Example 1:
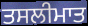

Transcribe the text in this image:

ਤਸਲੀਮਾਤ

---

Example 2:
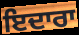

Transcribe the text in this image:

ਇਦਾਰਾ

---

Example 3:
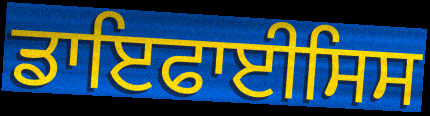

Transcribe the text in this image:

ਡਾਇਫਾਈਸਿਸ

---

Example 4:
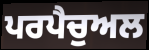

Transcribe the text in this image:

ਪਰਪੈਚੁਅਲ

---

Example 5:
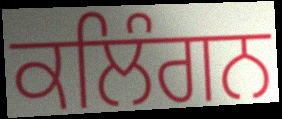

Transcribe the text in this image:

ਕਲਿੰਗਨ